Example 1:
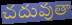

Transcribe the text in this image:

చదువుతా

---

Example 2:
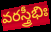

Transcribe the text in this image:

వరస్త్రీభిః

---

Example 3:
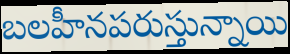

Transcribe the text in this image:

బలహీనపరుస్తున్నాయి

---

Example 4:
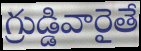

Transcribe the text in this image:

గ్రుడ్డివారైతే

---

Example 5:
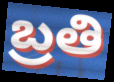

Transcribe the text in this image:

బ్రతి